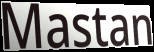
Mastan